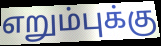
எறும்புக்கு